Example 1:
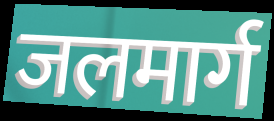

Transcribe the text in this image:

जलमार्ग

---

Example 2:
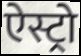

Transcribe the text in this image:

ऐस्ट्रो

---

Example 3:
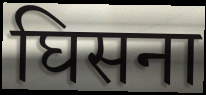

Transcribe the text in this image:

घिसना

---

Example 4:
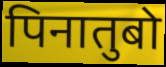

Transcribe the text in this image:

पिनातुबो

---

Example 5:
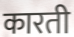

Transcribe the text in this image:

कारती